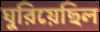
ঘুরিয়েছিল